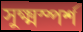
সুক্ষ্মস্পর্শ